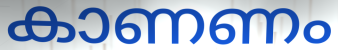
കാണണം